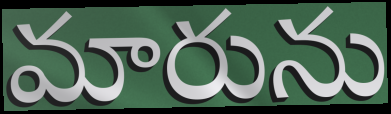
మారును